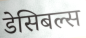
डेसिबल्स